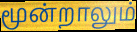
மூன்றாலும்